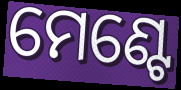
ମେଣ୍ଟେ